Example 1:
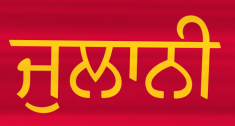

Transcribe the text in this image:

ਜੁਲਾਨੀ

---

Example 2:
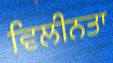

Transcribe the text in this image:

ਵਿਲੀਨਤਾ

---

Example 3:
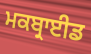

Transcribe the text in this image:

ਮਕਬ੍ਰਾਈਡ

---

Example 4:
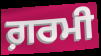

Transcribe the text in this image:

ਗ਼ਰਮੀ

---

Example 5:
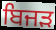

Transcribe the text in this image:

ਬਿਜੜ